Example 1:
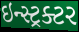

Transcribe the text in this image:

ઇન્સ્ટ્રક્ટર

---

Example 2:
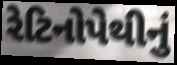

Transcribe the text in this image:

રેટિનોપેથીનું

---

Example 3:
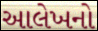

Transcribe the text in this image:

આલેખનો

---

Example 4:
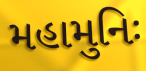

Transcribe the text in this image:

મહામુનિઃ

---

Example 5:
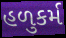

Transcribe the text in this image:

હળુકર્મ